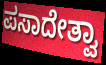
ಪಸಾದೇತ್ವಾ